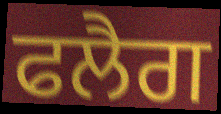
ਫਲੈਗ